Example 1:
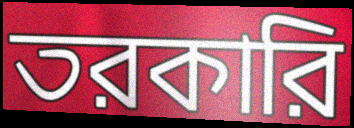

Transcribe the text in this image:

তরকারি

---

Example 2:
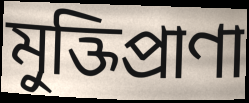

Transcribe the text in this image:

মুক্তিপ্রাণা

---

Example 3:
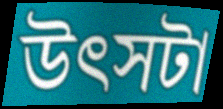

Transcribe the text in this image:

উৎসটা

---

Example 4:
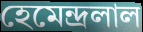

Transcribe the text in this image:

হেমেন্দ্রলাল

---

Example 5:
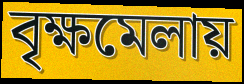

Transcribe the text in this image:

বৃক্ষমেলায়